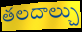
తలదాల్చు